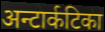
अन्टार्कटिका